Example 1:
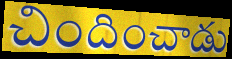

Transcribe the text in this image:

చిందించాడు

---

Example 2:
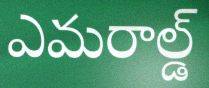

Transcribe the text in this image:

ఎమరాల్డ్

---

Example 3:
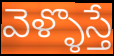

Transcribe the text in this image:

వెళ్ళొస్తే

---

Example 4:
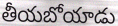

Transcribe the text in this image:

తీయబోయాడు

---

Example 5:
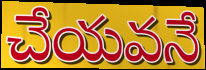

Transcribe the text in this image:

చేయవనే